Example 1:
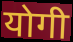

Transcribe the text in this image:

योगी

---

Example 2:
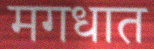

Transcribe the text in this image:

मगधात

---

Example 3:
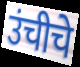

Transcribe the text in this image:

उंचीचे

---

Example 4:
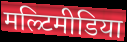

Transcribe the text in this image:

मल्टिमीडिया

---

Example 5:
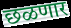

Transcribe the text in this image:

छळणार